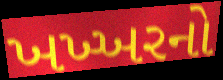
ખખ્ખરનો